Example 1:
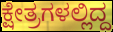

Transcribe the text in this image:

ಕ್ಷೇತ್ರಗಳಲ್ಲಿದ್ದ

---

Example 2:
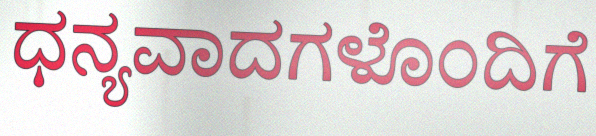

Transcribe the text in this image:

ಧನ್ಯವಾದಗಳೊಂದಿಗೆ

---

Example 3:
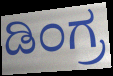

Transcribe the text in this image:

ಡಿಂಗ್ರ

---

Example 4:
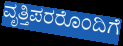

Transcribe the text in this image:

ವೃತ್ತಿಪರರೊಂದಿಗೆ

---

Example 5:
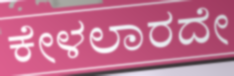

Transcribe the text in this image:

ಕೇಳಲಾರದೇ